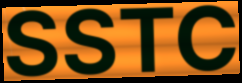
SSTC